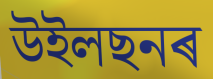
উইলছনৰ